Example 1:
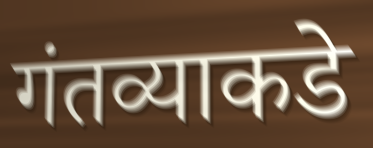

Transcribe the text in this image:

गंतव्याकडे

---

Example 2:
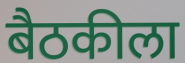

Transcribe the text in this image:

बैठकीला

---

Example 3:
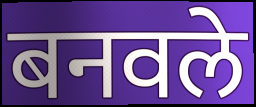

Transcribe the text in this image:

बनवले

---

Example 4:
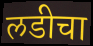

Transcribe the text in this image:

लडीचा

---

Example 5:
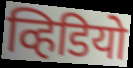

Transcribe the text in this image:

व्हिडियो